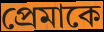
প্রেমাকে